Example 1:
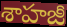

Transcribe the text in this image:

శాహజీ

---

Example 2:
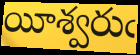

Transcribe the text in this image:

యీశ్వరుఁ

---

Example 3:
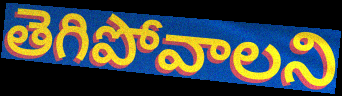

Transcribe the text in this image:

తెగిపోవాలని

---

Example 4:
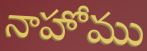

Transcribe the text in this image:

నాహోము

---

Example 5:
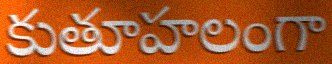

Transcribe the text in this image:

కుతూహలంగా